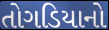
તોગડિયાનો